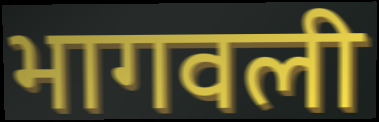
भागवली